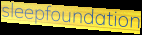
sleepfoundation